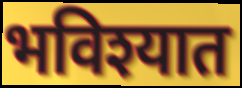
भविश्यात